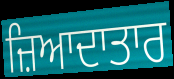
ਜ਼ਿਆਦਾਤਾਰ